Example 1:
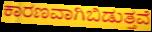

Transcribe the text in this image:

ಕಾರಣವಾಗಿಬಿಡುತ್ತವೆ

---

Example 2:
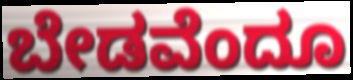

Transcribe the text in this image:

ಬೇಡವೆಂದೂ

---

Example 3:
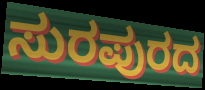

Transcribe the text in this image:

ಸುರಪುರದ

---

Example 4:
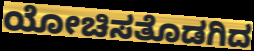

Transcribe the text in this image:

ಯೋಚಿಸತೊಡಗಿದ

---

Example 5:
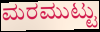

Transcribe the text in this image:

ಮರಮುಟ್ಟು